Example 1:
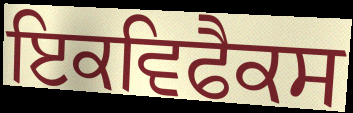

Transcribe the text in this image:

ਇਕਵਿਫੈਕਸ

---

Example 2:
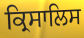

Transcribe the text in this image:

ਕ੍ਰਿਸਾਲਿਸ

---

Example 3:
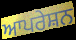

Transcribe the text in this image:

ਆਪਰੇਸ਼ਨ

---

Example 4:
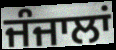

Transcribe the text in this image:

ਜੰਜਾਲਾਂ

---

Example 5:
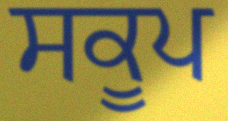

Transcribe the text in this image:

ਸਕੂਪ